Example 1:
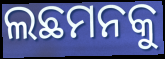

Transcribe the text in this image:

ଲଛମନକୁ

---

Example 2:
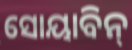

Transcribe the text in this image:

ସୋୟାବିନ୍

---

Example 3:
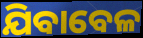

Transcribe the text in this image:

ଯିବାବେଳ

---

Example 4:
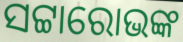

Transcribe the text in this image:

ସଟ୍ଟାରୋଭଙ୍କ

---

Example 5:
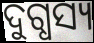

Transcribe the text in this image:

ଦୁଗ୍ଧସ୍ୟ